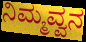
ನಿಮ್ಮವ್ವನ